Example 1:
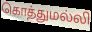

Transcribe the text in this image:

கொத்துமல்லி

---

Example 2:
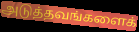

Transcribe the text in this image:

அடுத்தவங்களைக்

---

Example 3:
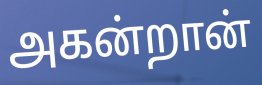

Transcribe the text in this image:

அகன்றான்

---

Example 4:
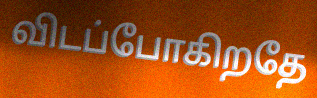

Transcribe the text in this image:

விடப்போகிறதே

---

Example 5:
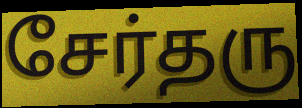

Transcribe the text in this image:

சேர்தரு